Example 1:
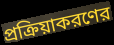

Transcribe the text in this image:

প্রক্রিয়াকরণের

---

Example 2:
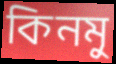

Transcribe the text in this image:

কিনমু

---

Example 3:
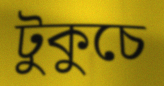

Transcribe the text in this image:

টুকুচে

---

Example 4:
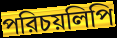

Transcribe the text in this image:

পরিচয়লিপি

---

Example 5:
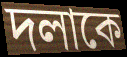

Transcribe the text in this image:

দলাকে